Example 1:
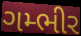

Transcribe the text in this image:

ગમ્ભીર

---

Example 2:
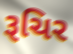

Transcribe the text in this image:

રૂચિર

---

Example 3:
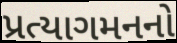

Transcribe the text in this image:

પ્રત્યાગમનનો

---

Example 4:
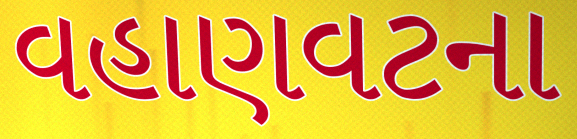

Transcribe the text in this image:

વહાણવટના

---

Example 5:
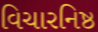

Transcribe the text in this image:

વિચારનિષ્ઠ